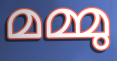
മമ്മു